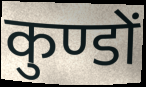
कुण्डों